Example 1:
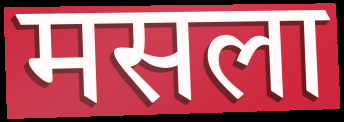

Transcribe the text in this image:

मसला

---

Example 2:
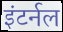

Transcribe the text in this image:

इंटर्नल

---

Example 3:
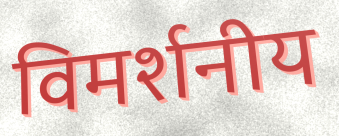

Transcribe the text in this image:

विमर्शनीय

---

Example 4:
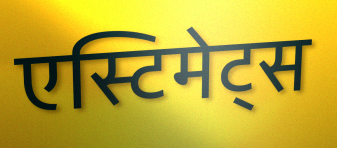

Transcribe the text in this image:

एस्टिमेट्स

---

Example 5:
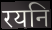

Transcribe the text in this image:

रयनि